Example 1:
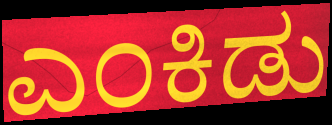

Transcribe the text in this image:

ಎಂಕಿಡು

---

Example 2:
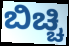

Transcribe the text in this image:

ಬಿಚ್ಚಿ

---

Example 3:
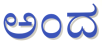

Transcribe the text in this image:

ಅಂದ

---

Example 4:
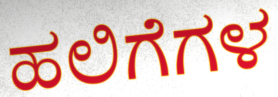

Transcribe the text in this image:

ಹಲಿಗೆಗಳ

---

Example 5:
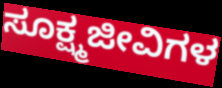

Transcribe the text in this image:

ಸೂಕ್ಷ್ಮಜೀವಿಗಳ